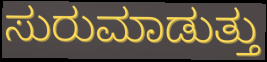
ಸುರುಮಾಡುತ್ತು